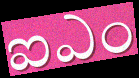
ఐఎం